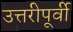
उत्तरीपूर्वी